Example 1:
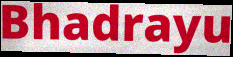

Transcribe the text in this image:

Bhadrayu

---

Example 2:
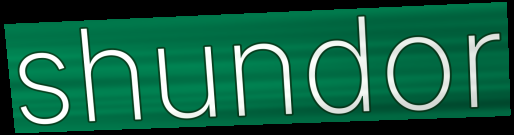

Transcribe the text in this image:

shundor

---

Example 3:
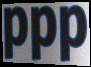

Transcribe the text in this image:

ppp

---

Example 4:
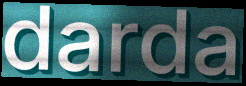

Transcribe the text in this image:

darda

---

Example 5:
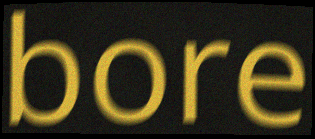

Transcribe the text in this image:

bore